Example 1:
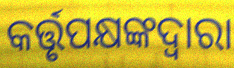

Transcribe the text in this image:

କର୍ତ୍ତୃପକ୍ଷଙ୍କଦ୍ଵାରା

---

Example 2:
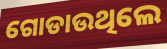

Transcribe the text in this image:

ଗୋଡାଉଥିଲେ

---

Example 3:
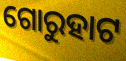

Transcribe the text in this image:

ଗୋରୁହାଟ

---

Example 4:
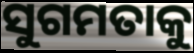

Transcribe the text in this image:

ସୁଗମତାକୁ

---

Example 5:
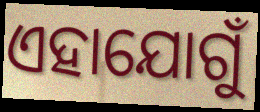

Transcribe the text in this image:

ଏହାଯୋଗୁଁ